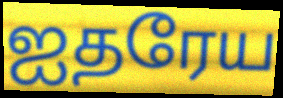
ஐதரேய